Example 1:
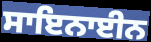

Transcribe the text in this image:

ਸਾਇਨਾਈਨ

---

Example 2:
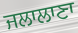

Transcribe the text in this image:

ਜਲਾਲਾਣਾ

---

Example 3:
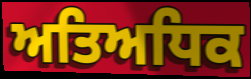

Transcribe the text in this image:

ਅਤਿਅਧਿਕ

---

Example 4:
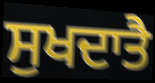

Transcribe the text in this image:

ਸੁਖਦਾਤੈ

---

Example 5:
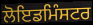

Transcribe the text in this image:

ਲੋਇਡਮਿੰਸਟਰ